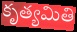
కృత్యమితి